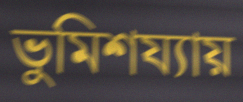
ভুমিশয্যায়